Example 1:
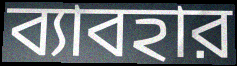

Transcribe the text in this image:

ব্যাবহার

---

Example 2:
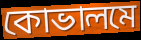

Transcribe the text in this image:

কোভালমে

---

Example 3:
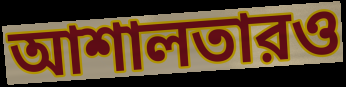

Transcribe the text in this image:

আশালতারও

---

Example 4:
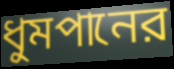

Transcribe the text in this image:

ধুমপানের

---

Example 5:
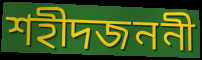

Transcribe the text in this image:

শহীদজননী